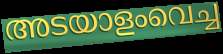
അടയാളംവെച്ച